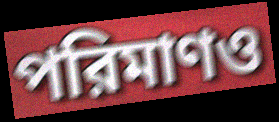
পরিমাণও